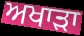
ਅਖਾੜਾ